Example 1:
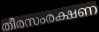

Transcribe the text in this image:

തീരസംരക്ഷണ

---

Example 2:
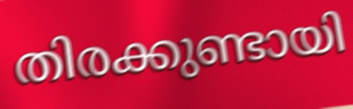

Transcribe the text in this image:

തിരക്കുണ്ടായി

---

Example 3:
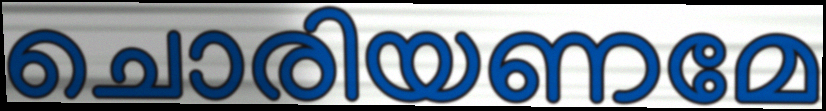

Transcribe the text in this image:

ചൊരിയണമേ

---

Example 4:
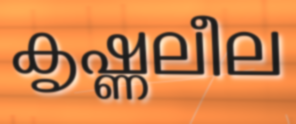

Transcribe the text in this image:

കൃഷ്ണലീല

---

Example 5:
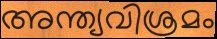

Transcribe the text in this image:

അന്ത്യവിശ്രമം